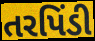
તરપિંડી